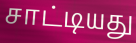
சாட்டியது